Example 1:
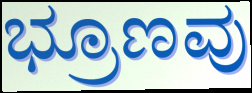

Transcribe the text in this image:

ಭ್ರೂಣವು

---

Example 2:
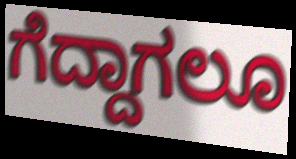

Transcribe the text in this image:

ಗೆದ್ದಾಗಲೂ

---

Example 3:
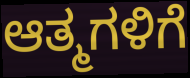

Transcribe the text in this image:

ಆತ್ಮಗಳಿಗೆ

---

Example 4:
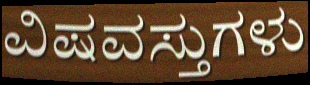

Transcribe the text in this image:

ವಿಷವಸ್ತುಗಳು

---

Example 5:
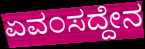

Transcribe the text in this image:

ಏವಂಸದ್ದೇನ